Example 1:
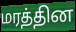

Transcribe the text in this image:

மரத்தின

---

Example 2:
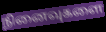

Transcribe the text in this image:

நினைவுகளை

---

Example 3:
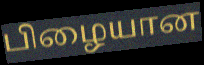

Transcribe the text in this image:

பிழையான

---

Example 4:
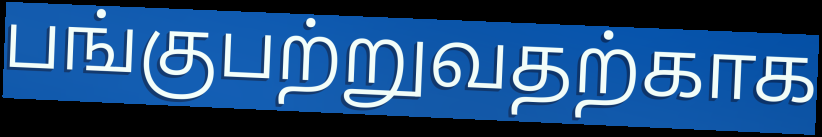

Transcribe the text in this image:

பங்குபற்றுவதற்காக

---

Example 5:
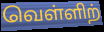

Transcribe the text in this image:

வெள்ளிற்